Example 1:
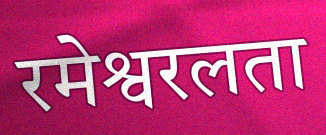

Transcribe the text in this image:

रमेश्वरलता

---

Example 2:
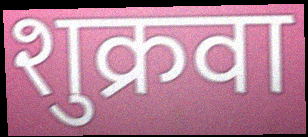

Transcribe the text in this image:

शुक्रवा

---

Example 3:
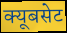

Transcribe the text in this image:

क्यूबसेट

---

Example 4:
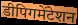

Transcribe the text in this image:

डीपिगमेंटेशन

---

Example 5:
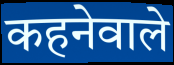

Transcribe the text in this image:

कहनेवाले